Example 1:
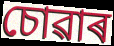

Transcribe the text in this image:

চোৱাৰ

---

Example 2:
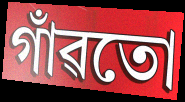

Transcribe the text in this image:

গাঁৱতো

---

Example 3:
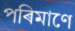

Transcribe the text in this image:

পৰিমাণে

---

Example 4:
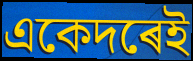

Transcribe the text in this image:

একেদৰেই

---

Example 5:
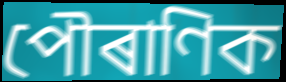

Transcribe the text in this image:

পৌৰাণিক